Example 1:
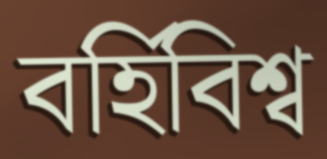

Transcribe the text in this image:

বর্হিবিশ্ব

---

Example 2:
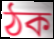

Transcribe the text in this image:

ঠক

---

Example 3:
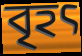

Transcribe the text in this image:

বৃহৎ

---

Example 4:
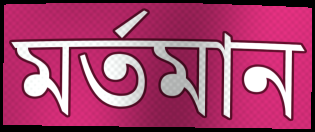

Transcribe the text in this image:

মর্তমান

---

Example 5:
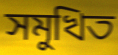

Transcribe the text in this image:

সমুখিত